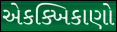
એકક્ખિકાણો